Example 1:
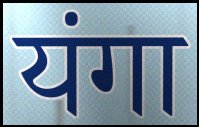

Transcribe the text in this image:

यंगा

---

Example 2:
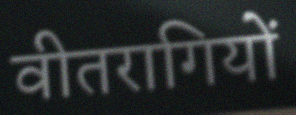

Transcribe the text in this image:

वीतरागियों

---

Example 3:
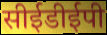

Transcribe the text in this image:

सीईडीईपी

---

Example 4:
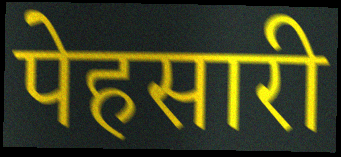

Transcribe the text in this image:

पेहसारी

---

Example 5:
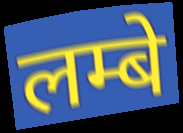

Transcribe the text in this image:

लम्बे